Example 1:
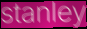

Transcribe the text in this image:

stanley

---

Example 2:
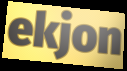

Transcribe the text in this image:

ekjon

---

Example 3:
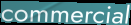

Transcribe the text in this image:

commercial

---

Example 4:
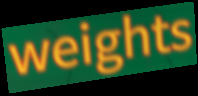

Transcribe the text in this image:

weights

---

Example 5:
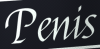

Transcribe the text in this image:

Penis